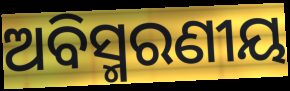
ଅବିସ୍ମରଣୀୟ